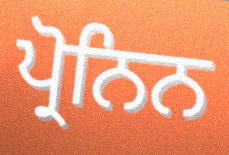
ਪ੍ਰੋਨਿਨ